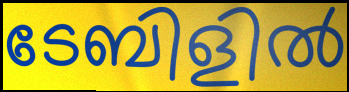
ടേബിളിൽ